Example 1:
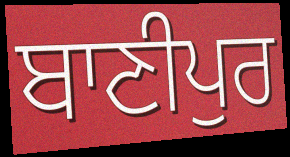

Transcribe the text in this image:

ਬਾਣੀਪੁਰ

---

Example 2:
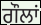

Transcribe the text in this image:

ਗੌਲਾਂ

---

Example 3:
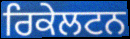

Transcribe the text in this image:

ਰਿਕੇਲਟਨ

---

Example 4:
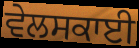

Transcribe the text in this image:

ਵੇਲਸਕਾਈ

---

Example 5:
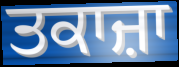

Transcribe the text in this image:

ਤਕਾਜ਼ਾ